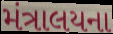
મંત્રાલયના